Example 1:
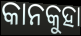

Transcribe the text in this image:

କାନକୁହା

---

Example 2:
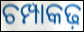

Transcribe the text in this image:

ଚମ୍ପାକଢ଼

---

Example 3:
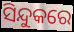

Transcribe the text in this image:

ସିନ୍ଦୁକରେ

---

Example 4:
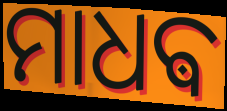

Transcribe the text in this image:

ମାଧଵ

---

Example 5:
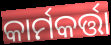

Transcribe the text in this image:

କାର୍ମକର୍ତ୍ତା